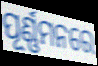
ପୂର୍ଣ୍ଣମନରେ